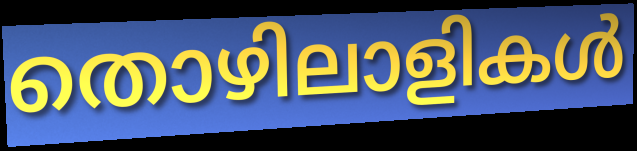
തൊഴിലാളികൾ